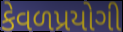
કેવળપ્રયોગી